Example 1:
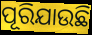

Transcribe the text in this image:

ପୂରିଯାଉଛି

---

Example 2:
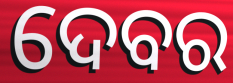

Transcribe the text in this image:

ଦେବର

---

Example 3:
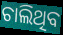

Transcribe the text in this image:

ଚାଲିଥିବ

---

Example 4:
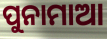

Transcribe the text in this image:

ପୁନାମାଆ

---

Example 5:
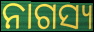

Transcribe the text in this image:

ନାଗସ୍ୟ